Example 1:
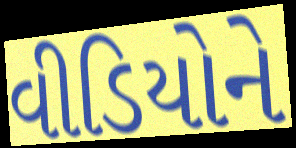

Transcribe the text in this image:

વીડિયોને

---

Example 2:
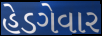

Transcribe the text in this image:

હેડગેવાર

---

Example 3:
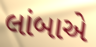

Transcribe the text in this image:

લાંબાએ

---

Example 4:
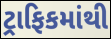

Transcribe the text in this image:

ટ્રાફિકમાંથી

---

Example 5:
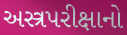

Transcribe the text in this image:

અસ્ત્રપરીક્ષાનો